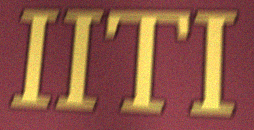
IITI